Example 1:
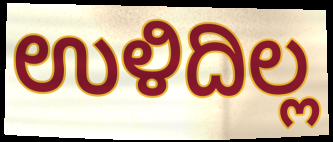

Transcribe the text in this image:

ಉಳಿದಿಲ್ಲ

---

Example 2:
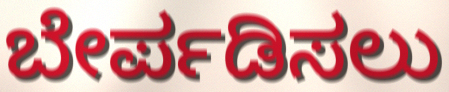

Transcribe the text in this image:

ಬೇರ್ಪಡಿಸಲು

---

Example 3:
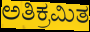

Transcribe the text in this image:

ಅತಿಕ್ರಮಿತ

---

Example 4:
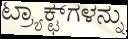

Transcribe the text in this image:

ಟ್ರ್ಯಾಕ್ಟ್‌ಗಳನ್ನು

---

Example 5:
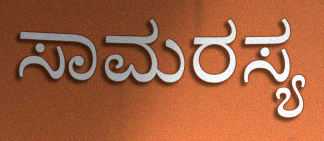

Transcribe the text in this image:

ಸಾಮರಸ್ಯ